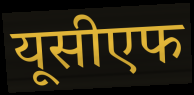
यूसीएफ